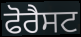
ਫੋਰੈਸਟ